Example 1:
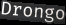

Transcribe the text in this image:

Drongo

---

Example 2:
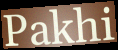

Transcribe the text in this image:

Pakhi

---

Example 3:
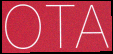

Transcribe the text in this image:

OTA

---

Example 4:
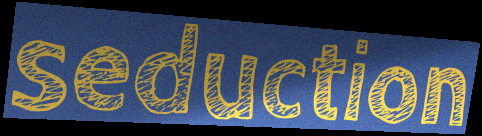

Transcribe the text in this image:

seduction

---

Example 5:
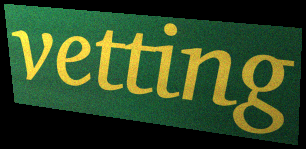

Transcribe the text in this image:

vetting